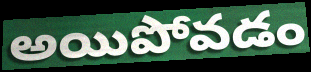
అయిపోవడం